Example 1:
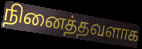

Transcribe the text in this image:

நினைத்தவளாக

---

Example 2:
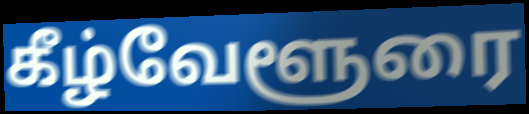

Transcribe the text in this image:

கீழ்வேளூரை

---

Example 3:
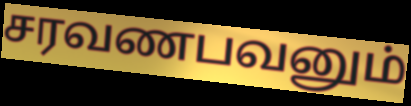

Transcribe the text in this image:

சரவணபவனும்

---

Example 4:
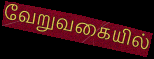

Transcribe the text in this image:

வேறுவகையில்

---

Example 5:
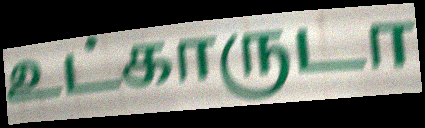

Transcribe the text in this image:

உட்காருடா